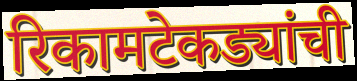
रिकामटेकड्यांची